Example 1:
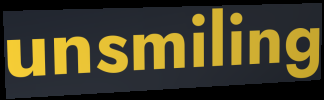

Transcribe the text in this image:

unsmiling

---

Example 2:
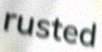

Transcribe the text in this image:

rusted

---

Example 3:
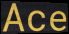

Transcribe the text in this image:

Ace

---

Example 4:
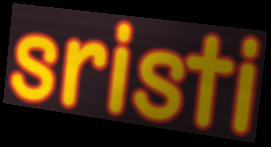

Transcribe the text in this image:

sristi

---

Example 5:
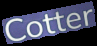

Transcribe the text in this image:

Cotter